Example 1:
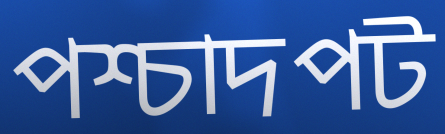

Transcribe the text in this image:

পশ্চাদপট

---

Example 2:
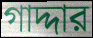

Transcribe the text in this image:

গাদ্দার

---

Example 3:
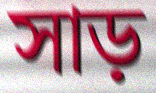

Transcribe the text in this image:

সাড়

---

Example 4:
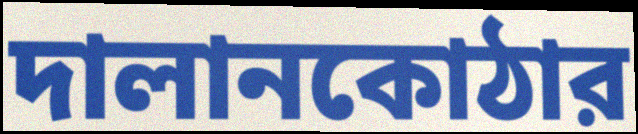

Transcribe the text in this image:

দালানকোঠার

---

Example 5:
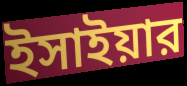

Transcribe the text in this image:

ইসাইয়ার